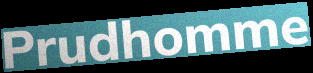
Prudhomme